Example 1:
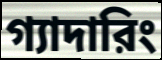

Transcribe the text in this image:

গ্যাদারিং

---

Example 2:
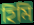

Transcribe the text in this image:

হিমি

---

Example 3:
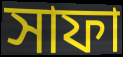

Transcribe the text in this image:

সাফা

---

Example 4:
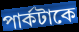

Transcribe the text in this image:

পার্কটাকে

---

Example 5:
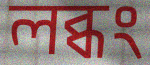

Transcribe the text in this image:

লব্ধং